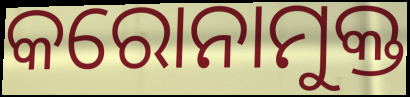
କରୋନାମୁକ୍ତ